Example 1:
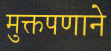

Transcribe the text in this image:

मुक्तपणाने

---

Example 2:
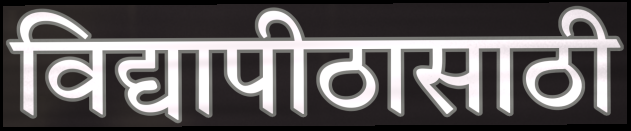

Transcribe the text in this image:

विद्यापीठासाठी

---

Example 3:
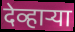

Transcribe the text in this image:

देव्हाऱ्या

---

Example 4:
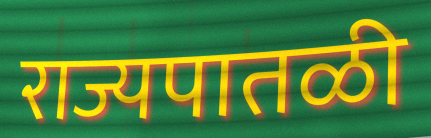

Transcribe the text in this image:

राज्यपातळी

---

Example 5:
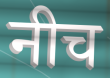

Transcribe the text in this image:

नीच